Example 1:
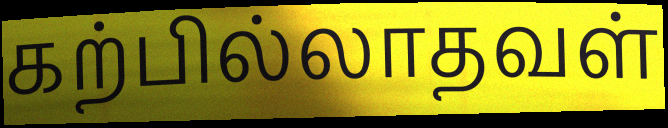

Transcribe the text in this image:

கற்பில்லாதவள்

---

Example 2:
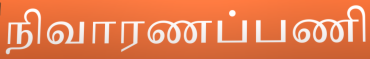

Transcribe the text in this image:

நிவாரணப்பணி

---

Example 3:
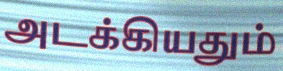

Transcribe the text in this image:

அடக்கியதும்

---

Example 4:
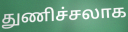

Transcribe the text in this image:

துணிச்சலாக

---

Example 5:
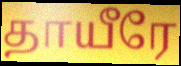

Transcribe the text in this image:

தாயீரே